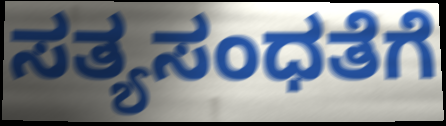
ಸತ್ಯಸಂಧತೆಗೆ